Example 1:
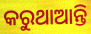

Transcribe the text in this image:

କରୁଥାଆନ୍ତି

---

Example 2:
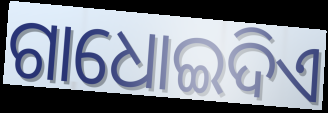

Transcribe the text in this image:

ଗାଧୋଇଦିଏ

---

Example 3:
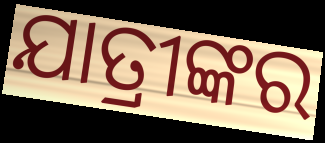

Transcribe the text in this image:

ଯାତ୍ରୀଙ୍କର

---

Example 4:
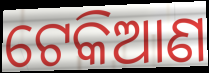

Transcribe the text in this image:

ଟେକିଆଣ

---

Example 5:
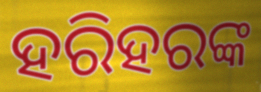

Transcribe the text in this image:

ହରିହରଙ୍କ